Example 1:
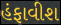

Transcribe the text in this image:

હંફાવીશ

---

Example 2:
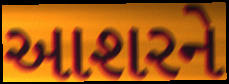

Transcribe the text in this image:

આશરને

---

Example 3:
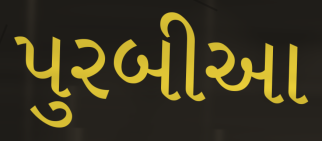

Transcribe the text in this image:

પુરબીઆ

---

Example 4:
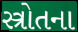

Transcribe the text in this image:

સ્ત્રોતના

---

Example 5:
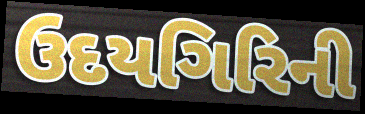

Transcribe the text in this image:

ઉદયગિરિની